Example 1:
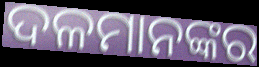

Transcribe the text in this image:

ଦଳମାନଙ୍କର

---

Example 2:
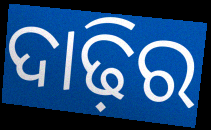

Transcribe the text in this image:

ଦାଢ଼ିର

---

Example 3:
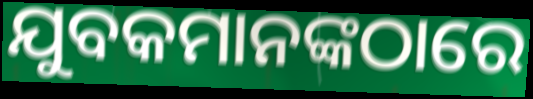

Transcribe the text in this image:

ଯୁବକମାନଙ୍କଠାରେ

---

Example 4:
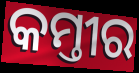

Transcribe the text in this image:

କମ୍ତୀର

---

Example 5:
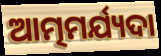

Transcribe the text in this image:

ଆତ୍ମମର୍ଯ୍ୟଦା